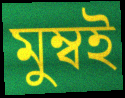
মুম্বই